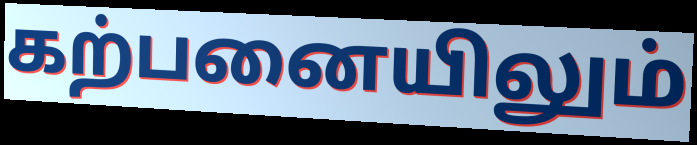
கற்பனையிலும்